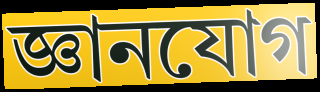
জ্ঞানযোগ